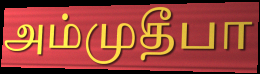
அம்முதீபா